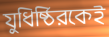
যুধিষ্ঠিরকেই